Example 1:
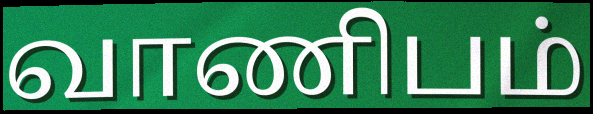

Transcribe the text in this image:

வாணிபம்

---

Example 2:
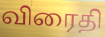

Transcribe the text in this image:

விரைதி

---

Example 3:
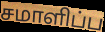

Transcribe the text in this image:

சமாளிப்ப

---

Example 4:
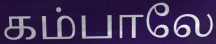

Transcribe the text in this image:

கம்பாலே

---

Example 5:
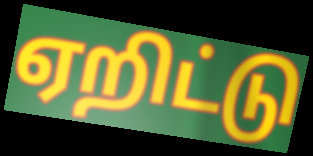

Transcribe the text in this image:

ஏறிட்டு